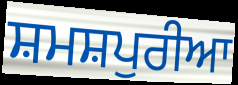
ਸ਼ਮਸ਼ਪੁਰੀਆ